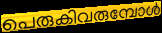
പെരുകിവരുമ്പോൾ